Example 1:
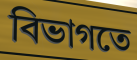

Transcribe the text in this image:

বিভাগতে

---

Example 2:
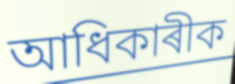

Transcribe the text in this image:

আধিকাৰীক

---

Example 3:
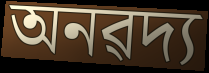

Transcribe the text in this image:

অনৱদ্য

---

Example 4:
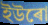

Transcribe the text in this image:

ইউৰো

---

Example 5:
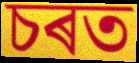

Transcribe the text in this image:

চৰত